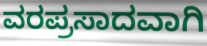
ವರಪ್ರಸಾದವಾಗಿ